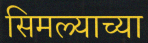
सिमल्याच्या